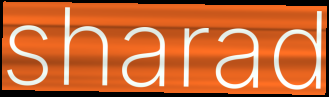
sharad